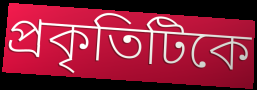
প্রকৃতিটিকে